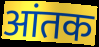
आंतक